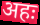
अहः